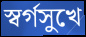
স্বর্গসুখে